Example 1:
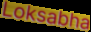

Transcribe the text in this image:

Loksabha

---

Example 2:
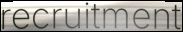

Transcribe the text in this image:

recruitment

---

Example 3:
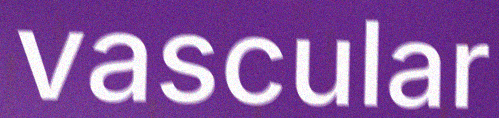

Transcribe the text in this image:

vascular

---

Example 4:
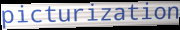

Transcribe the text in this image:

picturization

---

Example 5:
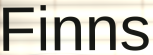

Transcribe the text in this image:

Finns